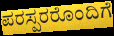
ಪರಸ್ಪರರೊಂದಿಗೆ